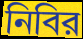
নিবির